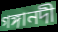
গঙ্গানদী